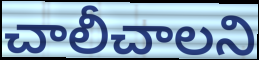
చాలీచాలని